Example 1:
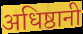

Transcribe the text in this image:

अधिष्ठानी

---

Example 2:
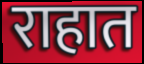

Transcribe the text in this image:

राहात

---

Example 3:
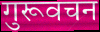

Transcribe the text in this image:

गुरूवचन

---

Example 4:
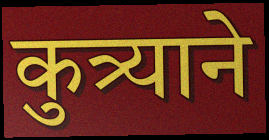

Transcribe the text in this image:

कुत्र्याने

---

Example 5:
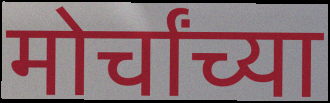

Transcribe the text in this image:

मोर्चांच्या